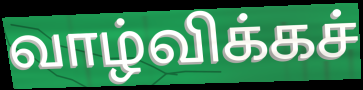
வாழ்விக்கச்